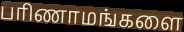
பரிணாமங்களை